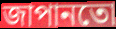
জাপানতো